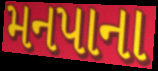
મનપાના